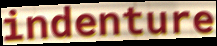
indenture